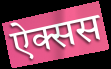
ऐक्सस